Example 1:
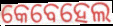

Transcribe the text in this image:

କେବେହେଲ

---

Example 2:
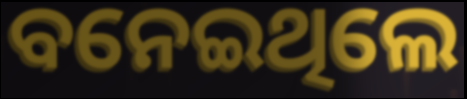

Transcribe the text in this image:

ବନେଇଥିଲେ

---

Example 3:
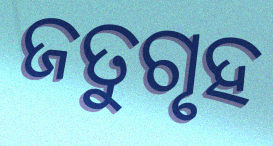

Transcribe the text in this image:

ଜତୁଗୃହ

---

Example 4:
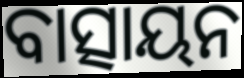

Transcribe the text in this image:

ବାତ୍ସାୟନ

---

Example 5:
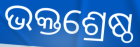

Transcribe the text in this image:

ଭକ୍ତଶ୍ରେଷ୍ଠ